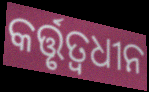
କର୍ତ୍ତୃତ୍ୱଧୀନ